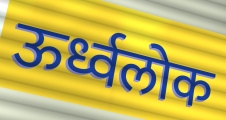
ऊर्ध्वलोक